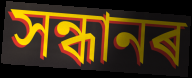
সন্ধানৰ